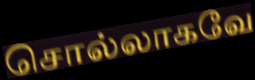
சொல்லாகவே